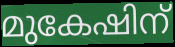
മുകേഷിന്